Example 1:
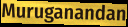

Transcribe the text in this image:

Muruganandan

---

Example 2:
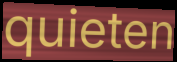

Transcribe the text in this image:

quieten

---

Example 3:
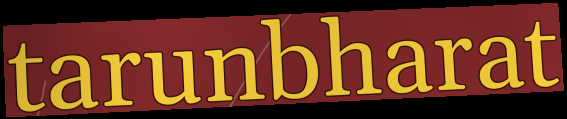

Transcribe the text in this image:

tarunbharat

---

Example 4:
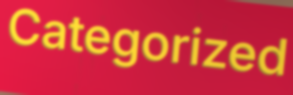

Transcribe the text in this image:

Categorized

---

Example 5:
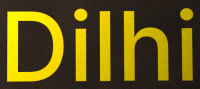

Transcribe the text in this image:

Dilhi